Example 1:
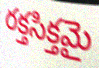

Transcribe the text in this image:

రక్తసిక్తమై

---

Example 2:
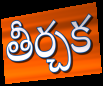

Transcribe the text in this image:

తీర్చక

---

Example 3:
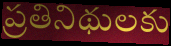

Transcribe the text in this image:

ప్రతినిథులకు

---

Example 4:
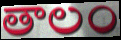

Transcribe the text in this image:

తాలం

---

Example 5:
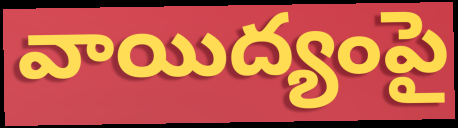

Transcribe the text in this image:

వాయిద్యంపై